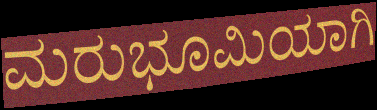
ಮರುಭೂಮಿಯಾಗಿ